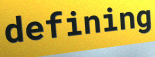
defining